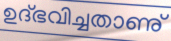
ഉദ്ഭവിച്ചതാണു്